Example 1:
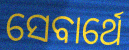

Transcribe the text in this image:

ସେବାର୍ଥେ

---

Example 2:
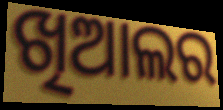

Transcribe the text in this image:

ଖିଆଲର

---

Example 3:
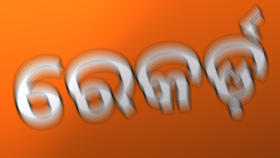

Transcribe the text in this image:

ରେକର୍ଡ଼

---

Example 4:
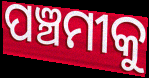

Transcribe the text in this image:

ପଞ୍ଚମୀକୁ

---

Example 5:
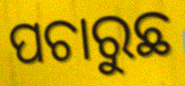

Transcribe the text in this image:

ପଚାରୁଛ